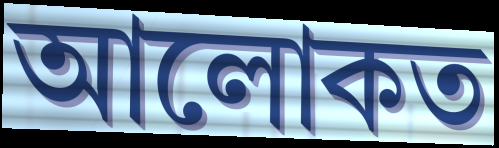
আলোকত